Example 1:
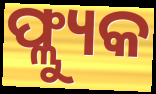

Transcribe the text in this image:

ଫ୍ଲ୍ୟୁକ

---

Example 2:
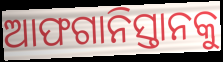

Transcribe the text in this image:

ଆଫଗାନିସ୍ତାନକୁ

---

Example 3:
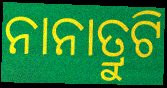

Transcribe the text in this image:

ନାନାତ୍ରୁଟି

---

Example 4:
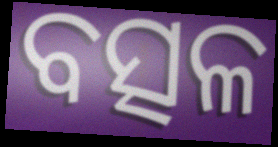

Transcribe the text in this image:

ବତ୍ସଳ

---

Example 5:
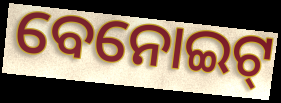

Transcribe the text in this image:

ବେନୋଇଟ୍